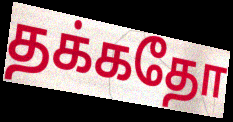
தக்கதோ